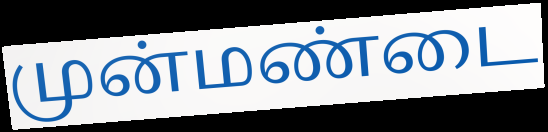
முன்மண்டை